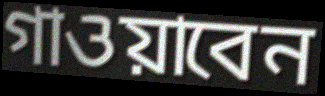
গাওয়াবেন